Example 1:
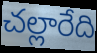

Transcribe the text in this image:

చల్లారేది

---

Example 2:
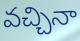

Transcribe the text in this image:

వచ్చినా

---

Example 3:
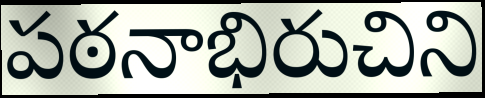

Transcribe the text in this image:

పఠనాభిరుచిని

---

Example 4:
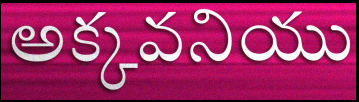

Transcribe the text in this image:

అక్కవనియు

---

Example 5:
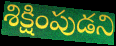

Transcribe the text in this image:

శిక్షింపుడని